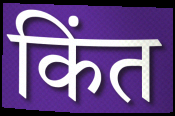
किंत